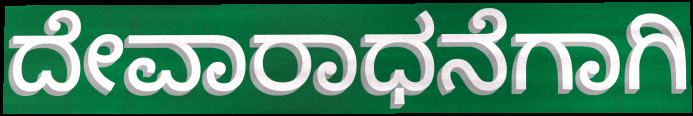
ದೇವಾರಾಧನೆಗಾಗಿ